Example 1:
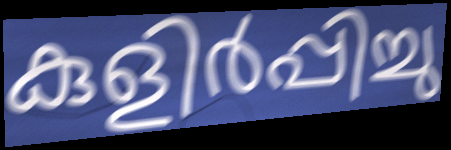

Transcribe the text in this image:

കുളിർപ്പിച്ചു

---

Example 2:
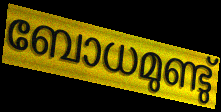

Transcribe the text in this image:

ബോധമുണ്ടു്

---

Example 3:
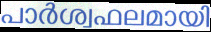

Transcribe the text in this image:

പാർശ്വഫലമായി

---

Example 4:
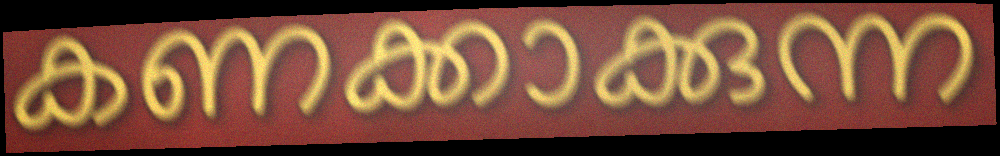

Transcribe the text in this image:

കണക്കാക്കുന്ന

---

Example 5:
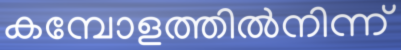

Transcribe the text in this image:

കമ്പോളത്തിൽനിന്ന്